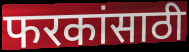
फरकांसाठी